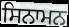
ਸਿਨਾਮਨ